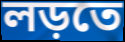
লড়তে